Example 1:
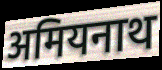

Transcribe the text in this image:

अमियनाथ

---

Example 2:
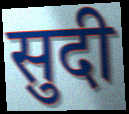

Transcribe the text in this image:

सुदी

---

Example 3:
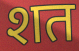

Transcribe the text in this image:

शत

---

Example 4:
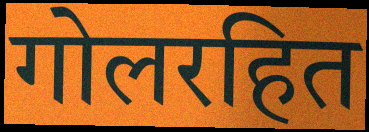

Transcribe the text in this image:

गोलरहित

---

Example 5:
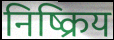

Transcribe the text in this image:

निष्क्रिय